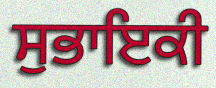
ਸੁਭਾਇਕੀ